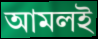
আমলই